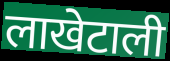
लाखेटाली